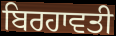
ਬਿਰਹਾਵਤੀ